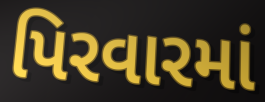
પિરવારમાં